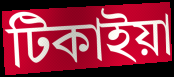
টিকাইয়া